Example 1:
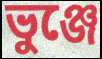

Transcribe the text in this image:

ভুঞ্জে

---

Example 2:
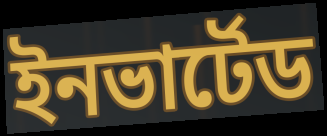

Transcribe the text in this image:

ইনভার্টেড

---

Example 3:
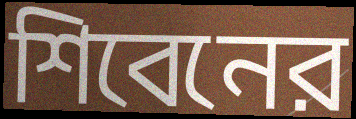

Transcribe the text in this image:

শিবেনের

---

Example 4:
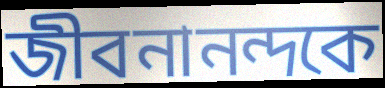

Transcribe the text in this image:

জীবনানন্দকে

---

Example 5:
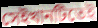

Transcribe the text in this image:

সেইখানটিতেই